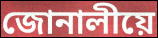
জোনালীয়ে